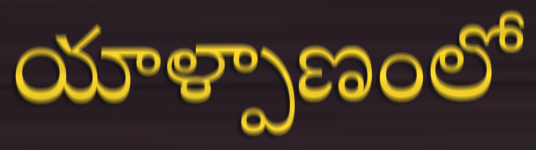
యాళ్పాణంలో